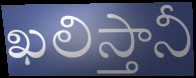
ఖలిస్తానీ